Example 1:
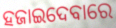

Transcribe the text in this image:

ହଜାଇଦେବାରେ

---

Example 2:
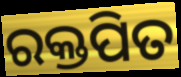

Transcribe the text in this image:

ରକ୍ତପିତ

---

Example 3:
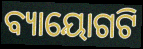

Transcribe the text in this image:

ବ୍ୟାୟୋଗଟି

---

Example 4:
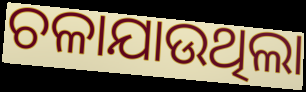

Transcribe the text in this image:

ଚଳାଯାଉଥିଲା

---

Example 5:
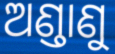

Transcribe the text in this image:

ଅଣ୍ଡାଣୁ